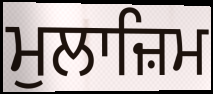
ਮੁਲਾਜ਼ਿਮ